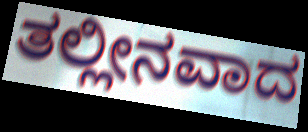
ತಲ್ಲೀನವಾದ